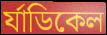
র্যাডিকেল